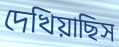
দেখিয়াছিস